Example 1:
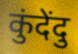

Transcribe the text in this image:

कुंदेंदु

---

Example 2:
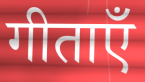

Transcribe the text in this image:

गीताएँ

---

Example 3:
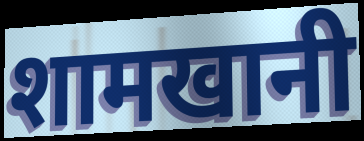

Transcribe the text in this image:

शामखानी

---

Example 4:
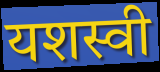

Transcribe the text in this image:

यशस्वी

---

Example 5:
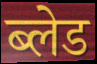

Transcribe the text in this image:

ब्लेड